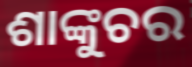
ଶାଙ୍କୁଚର